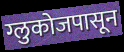
ग्लुकोजपासून